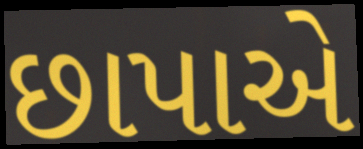
છાપાએ